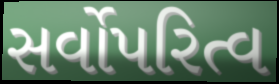
સર્વોપરિત્વ